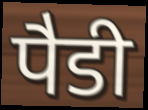
पैडी